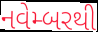
નવેમ્બરથી